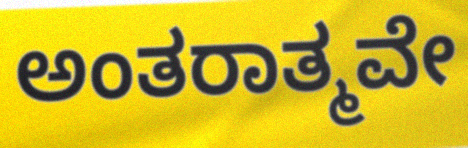
ಅಂತರಾತ್ಮವೇ